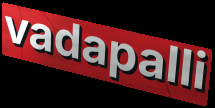
vadapalli